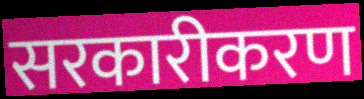
सरकारीकरण